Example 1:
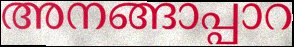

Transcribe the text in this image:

അനങ്ങാപ്പാറ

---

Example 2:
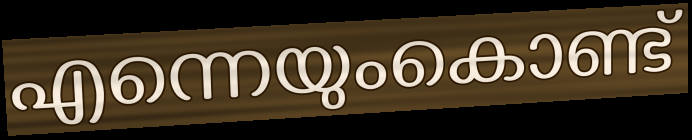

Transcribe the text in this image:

എന്നെയുംകൊണ്ട്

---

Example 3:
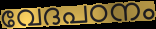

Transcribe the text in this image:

വേദപഠനം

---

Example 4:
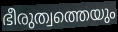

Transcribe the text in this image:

ഭീരുത്വത്തെയും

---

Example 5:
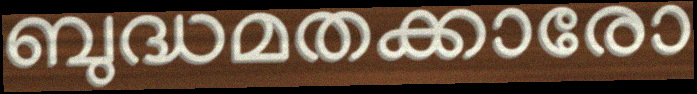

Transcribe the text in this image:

ബുദ്ധമതക്കാരോ